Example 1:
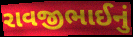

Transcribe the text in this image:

રાવજીભાઈનું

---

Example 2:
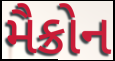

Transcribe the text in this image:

મૈક્રોન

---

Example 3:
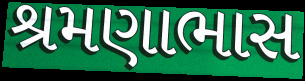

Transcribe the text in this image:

શ્રમણાભાસ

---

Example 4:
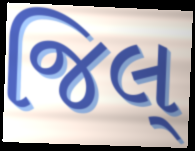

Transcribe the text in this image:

જિલ્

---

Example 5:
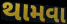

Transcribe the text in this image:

થામવા